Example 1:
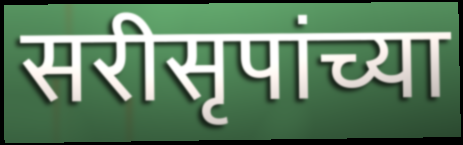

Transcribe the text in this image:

सरीसृपांच्या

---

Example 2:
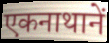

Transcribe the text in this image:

एकनाथानें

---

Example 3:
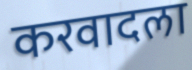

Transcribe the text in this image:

करवादला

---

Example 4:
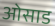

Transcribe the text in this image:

ओसाड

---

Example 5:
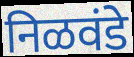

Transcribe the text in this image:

निळवंडे